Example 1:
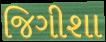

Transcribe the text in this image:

જિગીશા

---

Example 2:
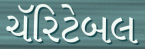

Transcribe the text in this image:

ચૅરિટેબલ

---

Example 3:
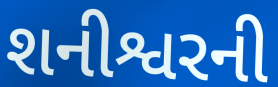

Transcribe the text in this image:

શનીશ્વરની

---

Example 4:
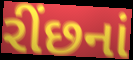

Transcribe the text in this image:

રીંછનાં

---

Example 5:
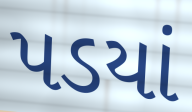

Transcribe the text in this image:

પડયાં